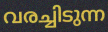
വരച്ചിടുന്ന